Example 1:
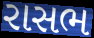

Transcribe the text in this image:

રાસભ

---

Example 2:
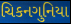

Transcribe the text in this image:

ચિકનગુનિયા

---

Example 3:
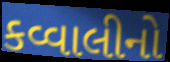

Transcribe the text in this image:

કવ્વાલીનો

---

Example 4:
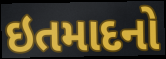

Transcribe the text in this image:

ઇતમાદનો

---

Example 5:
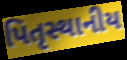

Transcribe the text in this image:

પિતૃસ્થાનીય